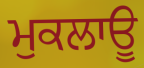
ਮੁਕਲਾਊ